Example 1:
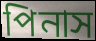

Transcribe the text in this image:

পিনাস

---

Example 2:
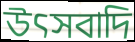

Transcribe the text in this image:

উৎসবাদি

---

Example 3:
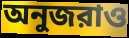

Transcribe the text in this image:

অনুজরাও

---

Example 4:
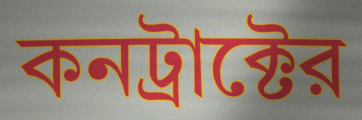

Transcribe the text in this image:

কনট্রাক্টের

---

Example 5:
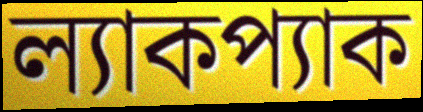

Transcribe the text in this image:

ল্যাকপ্যাক